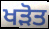
ਖੜੋਤ